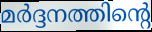
മർദ്ദനത്തിന്റെ